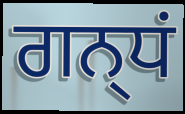
ਗਨ੍ਧਂ